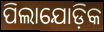
ପିଲାଯୋଡ଼ିକ